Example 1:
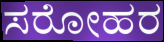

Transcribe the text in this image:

ಸರೋಹರ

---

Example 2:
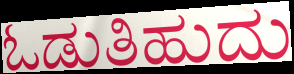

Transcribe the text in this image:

ಓಡುತಿಹುದು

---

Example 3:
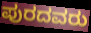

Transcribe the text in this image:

ಪುರದವರು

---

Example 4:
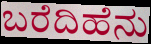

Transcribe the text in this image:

ಬರೆದಿಹೆನು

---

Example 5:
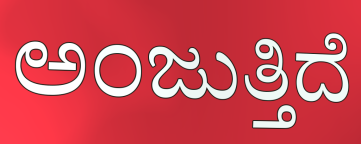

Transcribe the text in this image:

ಅಂಜುತ್ತಿದೆ